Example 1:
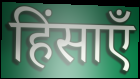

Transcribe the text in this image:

हिंसाएँ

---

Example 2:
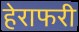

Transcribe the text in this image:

हेराफरी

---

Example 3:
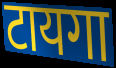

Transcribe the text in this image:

टायगा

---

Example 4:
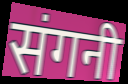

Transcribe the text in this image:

संगनी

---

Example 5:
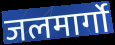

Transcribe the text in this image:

जलमार्गो